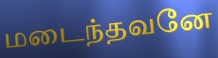
மடைந்தவனே